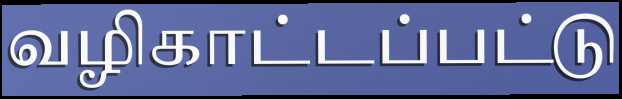
வழிகாட்டப்பட்டு